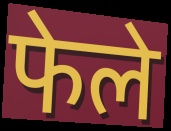
फेले